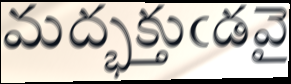
మద్భక్తుఁడవై